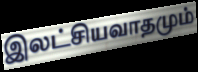
இலட்சியவாதமும்